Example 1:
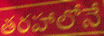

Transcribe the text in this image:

తరహాలోనే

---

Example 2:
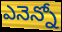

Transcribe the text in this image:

ఎనెన్నో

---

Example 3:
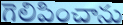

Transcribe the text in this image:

గెలిపించాను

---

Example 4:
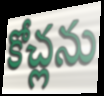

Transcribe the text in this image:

కోచ్లను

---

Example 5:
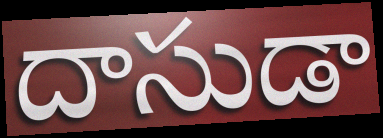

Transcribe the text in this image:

దాసుడా